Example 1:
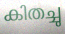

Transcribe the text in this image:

കിതച്ചു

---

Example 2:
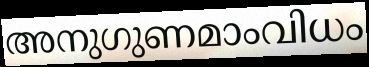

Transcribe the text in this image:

അനുഗുണമാംവിധം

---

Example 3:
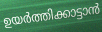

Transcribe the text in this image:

ഉയർത്തിക്കാട്ടാൻ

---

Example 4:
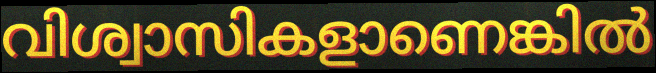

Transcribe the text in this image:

വിശ്വാസികളാണെങ്കിൽ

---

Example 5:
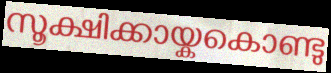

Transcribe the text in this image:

സൂക്ഷിക്കായ്കകൊണ്ടു